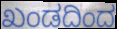
ಖಂಡದಿಂದ